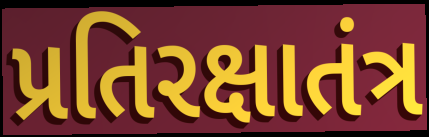
પ્રતિરક્ષાતંત્ર